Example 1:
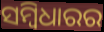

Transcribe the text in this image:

ସମ୍ବିଧାରର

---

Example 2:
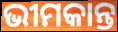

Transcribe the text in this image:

ଭୀମକାନ୍ତ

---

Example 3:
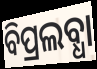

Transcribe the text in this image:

ବିପ୍ରଲବ୍ଧା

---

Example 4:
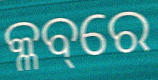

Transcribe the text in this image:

କ୍ଳବ୍‌ରେ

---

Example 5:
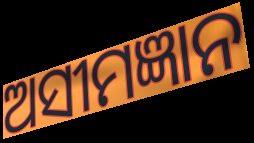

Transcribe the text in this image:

ଅସୀମଜ୍ଞାନ